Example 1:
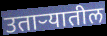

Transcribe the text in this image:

उताऱ्यातील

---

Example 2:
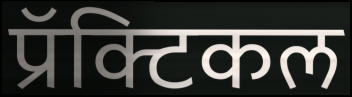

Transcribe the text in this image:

प्रॅक्टिकल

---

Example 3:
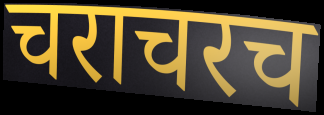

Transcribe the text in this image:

चराचरच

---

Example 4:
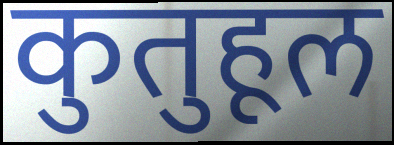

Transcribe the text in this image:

कुतुहूल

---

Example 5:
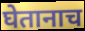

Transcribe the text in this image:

घेतानाच